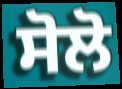
ਸੋਲੋ